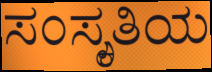
ಸಂಸ್ಕೃತಿಯ